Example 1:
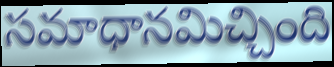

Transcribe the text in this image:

సమాధానమిచ్చింది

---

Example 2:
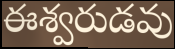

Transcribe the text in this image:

ఈశ్వరుడవు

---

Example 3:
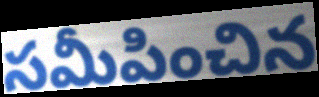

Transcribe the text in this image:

సమీపించిన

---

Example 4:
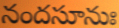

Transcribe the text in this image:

నందసూనుః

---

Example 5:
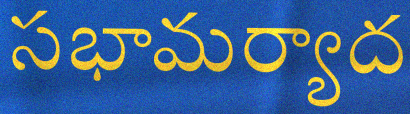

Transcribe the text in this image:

సభామర్యాద